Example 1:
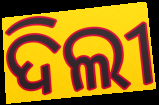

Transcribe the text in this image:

ଦିଲୀ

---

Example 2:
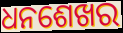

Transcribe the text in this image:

ଧନଶେଖର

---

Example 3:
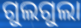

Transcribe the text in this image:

ଗୁଲଗୁଲା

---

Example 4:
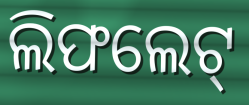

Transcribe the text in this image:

ଲିଫଲେଟ୍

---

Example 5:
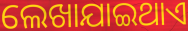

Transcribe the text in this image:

ଲେଖାଯାଇଥାଏ